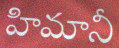
హిమానీ